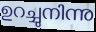
ഉറച്ചുനിന്നു